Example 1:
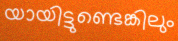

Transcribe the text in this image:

യായിട്ടുണ്ടെങ്കിലും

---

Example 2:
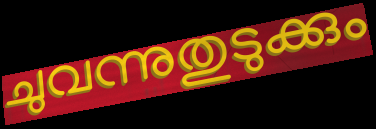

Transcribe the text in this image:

ചുവന്നുതുടുക്കും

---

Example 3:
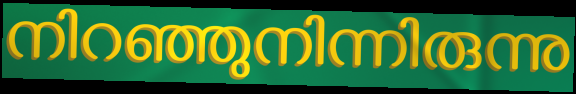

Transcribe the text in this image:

നിറഞ്ഞുനിന്നിരുന്നു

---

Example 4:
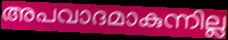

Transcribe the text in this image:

അപവാദമാകുന്നില്ല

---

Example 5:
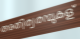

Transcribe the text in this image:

അതിര്വരമ്പുകള്